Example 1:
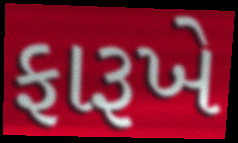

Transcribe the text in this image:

ફારૂખે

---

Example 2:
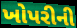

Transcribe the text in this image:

ખોપરીની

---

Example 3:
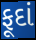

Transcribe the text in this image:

ફૂદાં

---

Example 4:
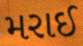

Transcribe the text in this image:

મરાઈ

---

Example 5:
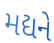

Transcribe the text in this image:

મદ્યને